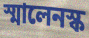
স্মালেনস্ক